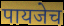
पायजेच